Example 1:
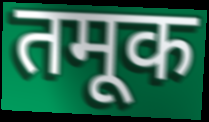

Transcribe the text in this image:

तमूक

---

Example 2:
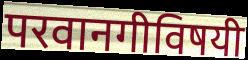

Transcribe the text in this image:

परवानगीविषयी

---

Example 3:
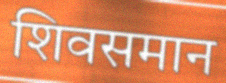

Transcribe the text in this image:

शिवसमान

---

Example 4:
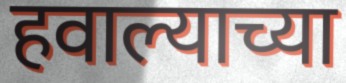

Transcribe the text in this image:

हवाल्याच्या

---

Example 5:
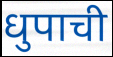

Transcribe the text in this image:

धुपाची